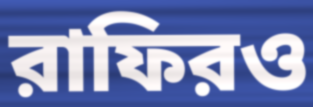
রাফিরও